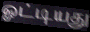
ஓட்டியது